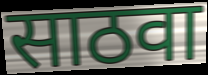
साठवा